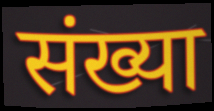
संख्या